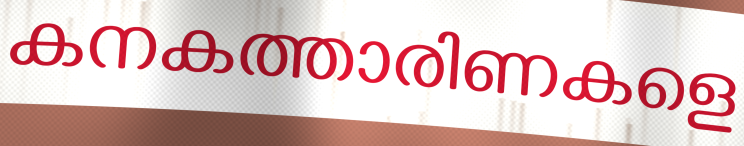
കനകത്താരിണകളെ